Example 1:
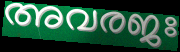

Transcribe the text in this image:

അവരജഃ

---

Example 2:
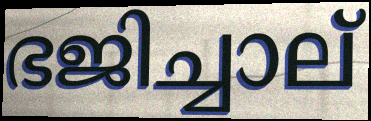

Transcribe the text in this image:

ഭജിച്ചാല്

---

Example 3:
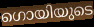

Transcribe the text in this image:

ഗൊയിയുടെ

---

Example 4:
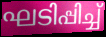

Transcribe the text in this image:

ഘടിപ്പിച്ച്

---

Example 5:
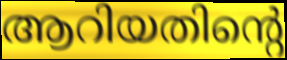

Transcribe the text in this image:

ആറിയതിന്റെ